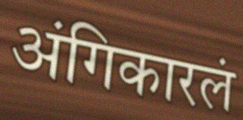
अंगिकारलं